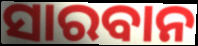
ସାରବାନ